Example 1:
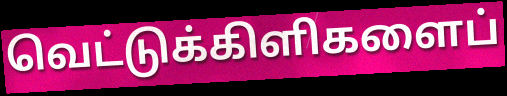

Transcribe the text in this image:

வெட்டுக்கிளிகளைப்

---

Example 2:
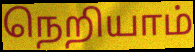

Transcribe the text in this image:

நெறியாம்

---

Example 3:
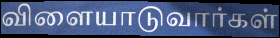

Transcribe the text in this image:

விளையாடுவார்கள்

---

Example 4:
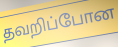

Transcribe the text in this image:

தவறிப்போன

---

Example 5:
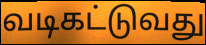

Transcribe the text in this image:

வடிகட்டுவது